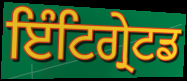
ਇੰਟਿਗ੍ਰੇਟਡ